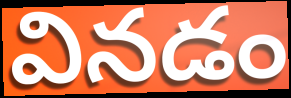
వినడం